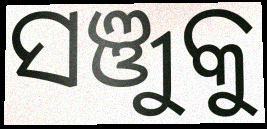
ସଞ୍ଜୁକୁ